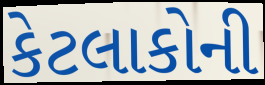
કેટલાકોની